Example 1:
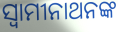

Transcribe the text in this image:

ସ୍ଵାମୀନାଥନଙ୍କ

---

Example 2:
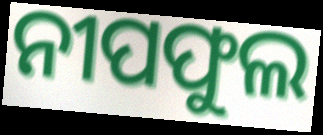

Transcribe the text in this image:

ନୀପଫୁଲ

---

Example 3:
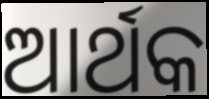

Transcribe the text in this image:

ଆର୍ଥକ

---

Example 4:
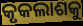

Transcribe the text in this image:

କୃକଲାଶକୁ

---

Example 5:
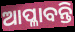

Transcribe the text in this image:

ଆପ୍ଳାବନ୍ତି